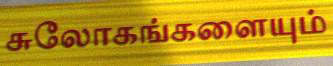
சுலோகங்களையும்